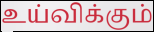
உய்விக்கும்